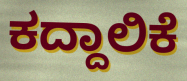
ಕದ್ದಾಲಿಕೆ